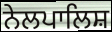
ਨੇਲਪਾਲਿਸ਼